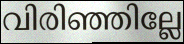
വിരിഞ്ഞില്ലേ